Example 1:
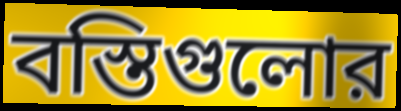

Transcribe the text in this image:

বস্তিগুলোর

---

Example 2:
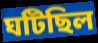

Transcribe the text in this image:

ঘটিছিল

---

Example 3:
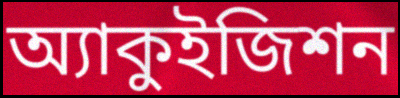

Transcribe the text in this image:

অ্যাকুইজিশন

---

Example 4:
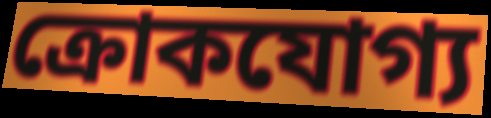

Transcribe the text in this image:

ক্রোকযোগ্য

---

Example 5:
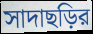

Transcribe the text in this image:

সাদাছড়ির